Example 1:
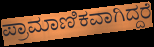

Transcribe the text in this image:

ಪ್ರಾಮಾಣಿಕವಾಗಿದ್ದರೆ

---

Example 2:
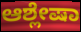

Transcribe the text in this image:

ಆಶ್ಲೇಷಾ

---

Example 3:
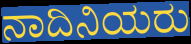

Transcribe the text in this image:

ನಾದಿನಿಯರು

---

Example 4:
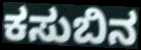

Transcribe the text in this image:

ಕಸುಬಿನ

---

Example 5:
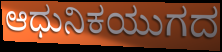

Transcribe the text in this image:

ಆಧುನಿಕಯುಗದ